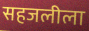
सहजलीला